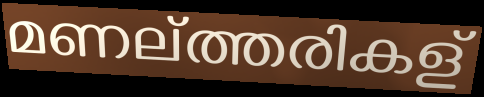
മണല്ത്തരികള്